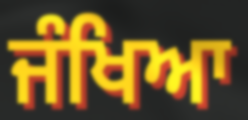
ਜੰਖਿਆ